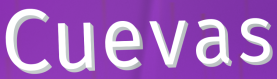
Cuevas